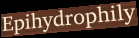
Epihydrophily